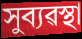
সুব্যৱস্থা